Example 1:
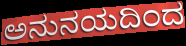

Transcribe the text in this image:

ಅನುನಯದಿಂದ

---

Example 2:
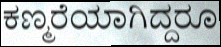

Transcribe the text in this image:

ಕಣ್ಮರೆಯಾಗಿದ್ದರೂ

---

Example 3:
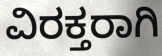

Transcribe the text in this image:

ವಿರಕ್ತರಾಗಿ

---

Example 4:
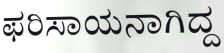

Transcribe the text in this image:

ಫರಿಸಾಯನಾಗಿದ್ದ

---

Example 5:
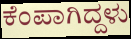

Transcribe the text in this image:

ಕೆಂಪಾಗಿದ್ದಳು